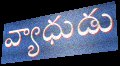
వ్యాధుడు